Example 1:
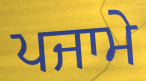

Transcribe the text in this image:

ਪਜਾਮੇ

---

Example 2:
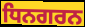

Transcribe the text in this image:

ਧਿਨਗਰਨ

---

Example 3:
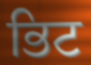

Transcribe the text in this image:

ਭਿਟ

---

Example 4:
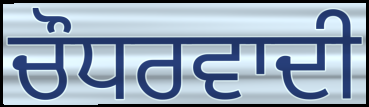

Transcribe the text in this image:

ਚੌਧਰਵਾਦੀ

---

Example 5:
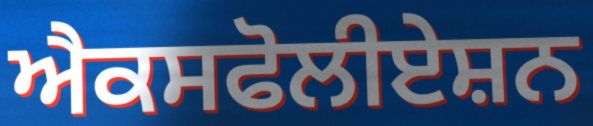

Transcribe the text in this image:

ਐਕਸਫੋਲੀਏਸ਼ਨ